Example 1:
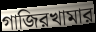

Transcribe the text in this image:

গাজিরখামার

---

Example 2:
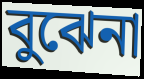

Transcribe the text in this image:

বুঝেনা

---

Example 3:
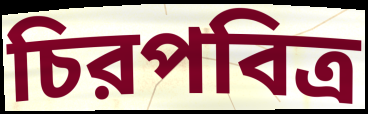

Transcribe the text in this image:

চিরপবিত্র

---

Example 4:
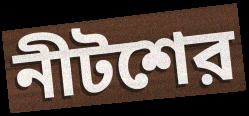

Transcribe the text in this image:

নীটশের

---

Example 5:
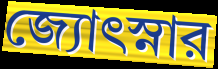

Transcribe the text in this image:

জ্যোৎস্নার